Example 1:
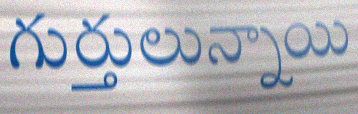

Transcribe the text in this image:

గుర్తులున్నాయి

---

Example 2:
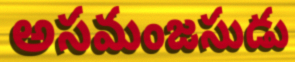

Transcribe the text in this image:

అసమంజసుడు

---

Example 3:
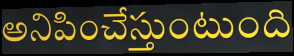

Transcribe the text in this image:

అనిపించేస్తుంటుంది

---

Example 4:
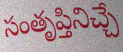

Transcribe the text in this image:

సంతృప్తినిచ్చే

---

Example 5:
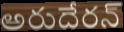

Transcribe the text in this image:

అరుదేరన్